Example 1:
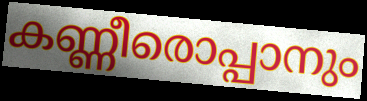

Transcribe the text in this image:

കണ്ണീരൊപ്പാനും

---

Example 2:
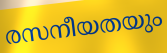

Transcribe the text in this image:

രസനീയതയും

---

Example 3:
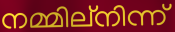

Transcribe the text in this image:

നമ്മില്നിന്ന്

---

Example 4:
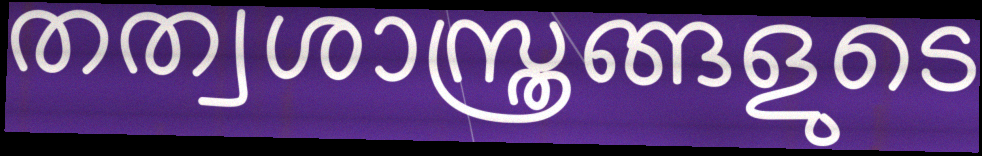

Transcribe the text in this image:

തത്വശാസ്ത്രങ്ങളുടെ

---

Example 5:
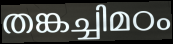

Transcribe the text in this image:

തങ്കച്ചിമഠം